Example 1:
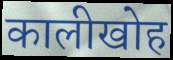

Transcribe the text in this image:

कालीखोह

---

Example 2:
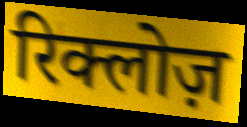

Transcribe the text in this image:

रिक्लोज़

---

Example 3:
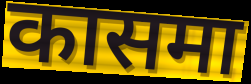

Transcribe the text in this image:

कासमा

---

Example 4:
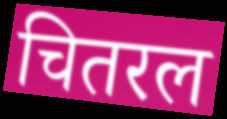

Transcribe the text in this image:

चितरल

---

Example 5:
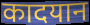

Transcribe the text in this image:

कादयान